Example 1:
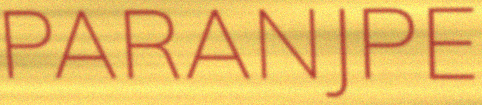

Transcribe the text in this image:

PARANJPE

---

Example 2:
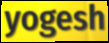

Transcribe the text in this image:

yogesh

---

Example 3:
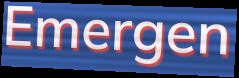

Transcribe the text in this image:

Emergen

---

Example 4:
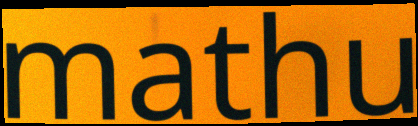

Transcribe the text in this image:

mathu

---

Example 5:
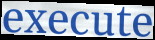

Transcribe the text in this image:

execute